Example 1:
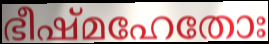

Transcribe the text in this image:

ഭീഷ്മഹേതോഃ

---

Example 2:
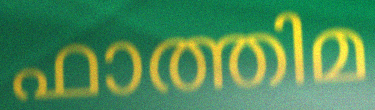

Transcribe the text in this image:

ഫാത്തിമ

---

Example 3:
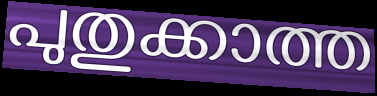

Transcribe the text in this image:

പുതുക്കാത്ത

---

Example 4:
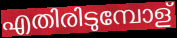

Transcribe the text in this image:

എതിരിടുമ്പോള്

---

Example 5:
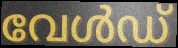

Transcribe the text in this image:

വേൾഡ്